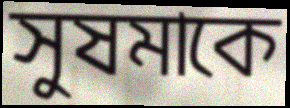
সুষমাকে